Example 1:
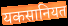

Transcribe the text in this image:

यकसानियत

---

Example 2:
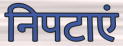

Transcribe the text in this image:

निपटाएं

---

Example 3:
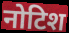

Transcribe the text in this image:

नोटिश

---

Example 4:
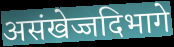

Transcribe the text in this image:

असंखेज्जदिभागे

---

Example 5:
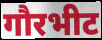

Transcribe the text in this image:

गौरभीट